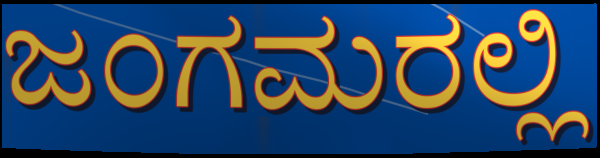
ಜಂಗಮರಲ್ಲಿ